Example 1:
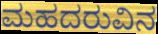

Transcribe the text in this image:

ಮಹದರುವಿನ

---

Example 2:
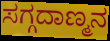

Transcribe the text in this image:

ಸಗ್ಗದಾಣ್ಮನ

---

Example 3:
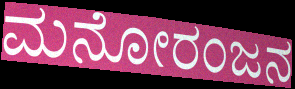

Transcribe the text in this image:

ಮನೋರಂಜನ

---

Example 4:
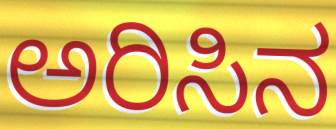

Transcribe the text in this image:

ಅರಿಸಿನ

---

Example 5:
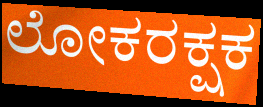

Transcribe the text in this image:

ಲೋಕರಕ್ಷಕ